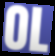
OL